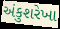
અંકુશરેખા